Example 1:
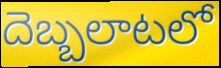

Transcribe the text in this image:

దెబ్బలాటలో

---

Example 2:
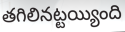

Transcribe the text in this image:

తగిలినట్టయ్యింది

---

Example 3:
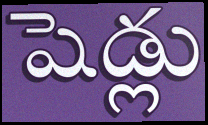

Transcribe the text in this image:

షెడ్లు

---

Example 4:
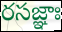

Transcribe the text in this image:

రసజ్ఞాః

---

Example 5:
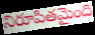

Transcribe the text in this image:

నిరూపితమైంది